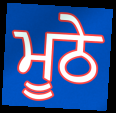
ਮੂਠੇ